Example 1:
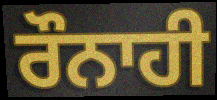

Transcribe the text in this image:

ਰੌਨਾਹੀ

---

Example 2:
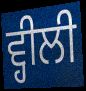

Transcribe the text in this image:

ਵ੍ਹੀਲੀ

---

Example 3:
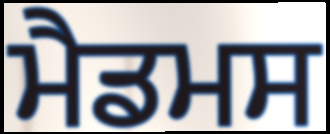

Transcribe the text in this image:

ਮੈਡਮਸ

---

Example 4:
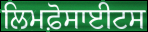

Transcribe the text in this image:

ਲਿਮਫ਼ੋਸਾਈਟਸ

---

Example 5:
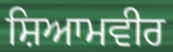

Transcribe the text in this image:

ਸ਼ਿਆਮਵੀਰ